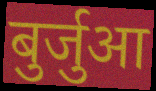
बुर्जुआ